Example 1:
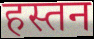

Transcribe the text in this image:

हस्तन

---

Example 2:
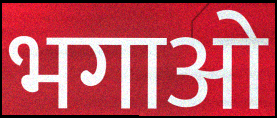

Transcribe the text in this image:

भगाओ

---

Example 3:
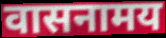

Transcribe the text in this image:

वासनामय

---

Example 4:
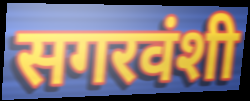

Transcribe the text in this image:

सगरवंशी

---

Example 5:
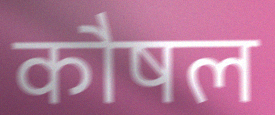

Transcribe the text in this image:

कौषल